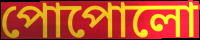
পোপোলো